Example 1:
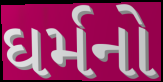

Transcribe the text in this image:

ઘર્મનો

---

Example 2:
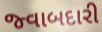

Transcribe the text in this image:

જ્વાબદારી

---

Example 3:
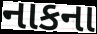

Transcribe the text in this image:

નાકના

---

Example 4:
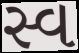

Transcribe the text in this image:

સ્વ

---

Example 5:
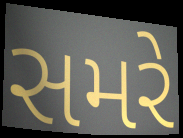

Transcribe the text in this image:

સમરે